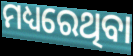
ମଧ୍ୟରେଥିବା